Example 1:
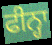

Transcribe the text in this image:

ਫੀਨ੍ਹਾ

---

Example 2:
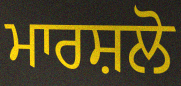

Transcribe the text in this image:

ਮਾਰਸ਼ਲੋ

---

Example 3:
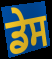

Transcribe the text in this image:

ਡੇਸ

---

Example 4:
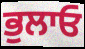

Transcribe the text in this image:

ਭੁਲਾਓ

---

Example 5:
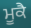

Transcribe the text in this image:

ਮੂਕੈ